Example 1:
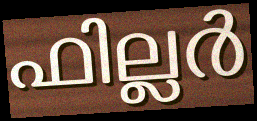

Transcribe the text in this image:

ഫില്ലർ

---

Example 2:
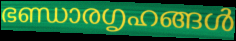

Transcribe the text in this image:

ഭണ്ഡാരഗൃഹങ്ങൾ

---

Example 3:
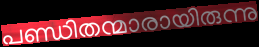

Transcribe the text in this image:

പണ്ഡിതന്മാരായിരുന്നു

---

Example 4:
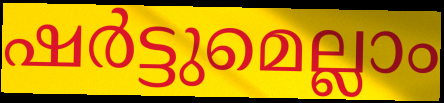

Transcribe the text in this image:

ഷർട്ടുമെല്ലാം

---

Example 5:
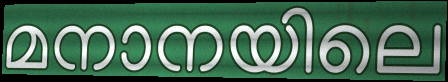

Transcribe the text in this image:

മനാനയിലെ